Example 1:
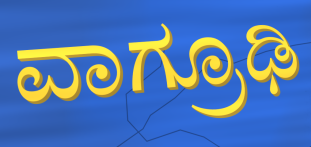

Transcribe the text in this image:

ವಾಗ್ರೂಢಿ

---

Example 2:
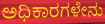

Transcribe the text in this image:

ಅಧಿಕಾರಗಳೇನು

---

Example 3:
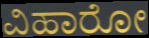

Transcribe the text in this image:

ವಿಹಾರೋ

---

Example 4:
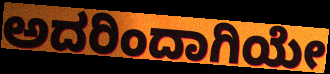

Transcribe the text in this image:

ಅದರಿಂದಾಗಿಯೇ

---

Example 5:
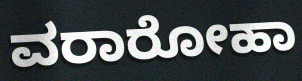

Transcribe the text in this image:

ವರಾರೋಹಾ